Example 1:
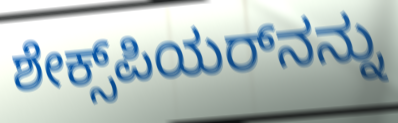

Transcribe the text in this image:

ಶೇಕ್ಸ್‌ಪಿಯರ್‌ನನ್ನು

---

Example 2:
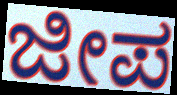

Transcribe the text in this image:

ಜೀಪ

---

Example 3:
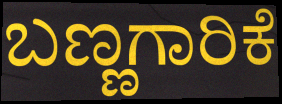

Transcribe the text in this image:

ಬಣ್ಣಗಾರಿಕೆ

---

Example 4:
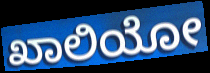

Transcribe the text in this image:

ಖಾಲಿಯೋ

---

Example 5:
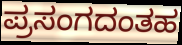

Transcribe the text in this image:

ಪ್ರಸಂಗದಂತಹ